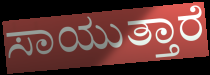
ಸಾಯುತ್ತಾರೆ